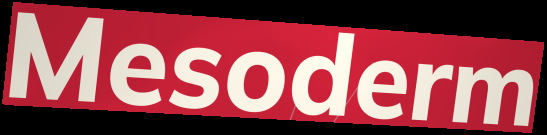
Mesoderm